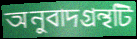
অনুবাদগ্রন্থটি